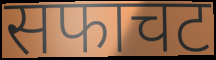
सफाचट